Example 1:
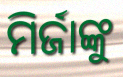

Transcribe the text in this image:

ମିର୍ଜାଙ୍କୁ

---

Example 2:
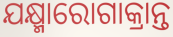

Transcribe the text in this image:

ଯକ୍ଷ୍ମାରୋଗାକ୍ରାନ୍ତ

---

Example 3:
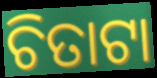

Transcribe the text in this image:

ଚିତାଟା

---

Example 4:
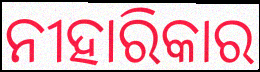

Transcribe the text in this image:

ନୀହାରିକାର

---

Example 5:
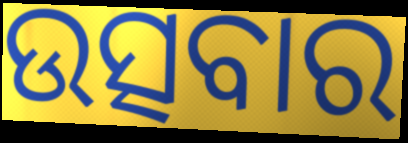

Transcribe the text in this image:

ଉତ୍ସବାର